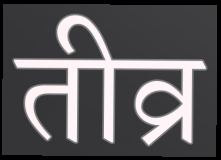
तीव्र